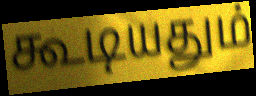
கூடியதும்